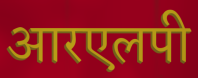
आरएलपी